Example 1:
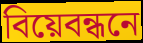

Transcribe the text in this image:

বিয়েবন্ধনে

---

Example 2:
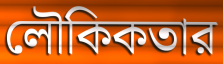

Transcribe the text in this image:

লৌকিকতার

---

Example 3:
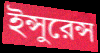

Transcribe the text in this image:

ইন্সুরেন্স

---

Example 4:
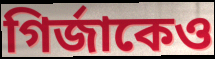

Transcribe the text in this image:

গির্জাকেও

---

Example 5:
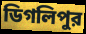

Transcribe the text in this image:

ডিগলিপুর